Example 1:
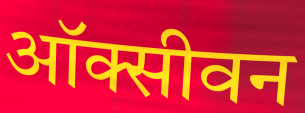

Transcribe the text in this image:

ऑक्सीवन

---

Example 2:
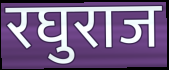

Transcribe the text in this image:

रघुराज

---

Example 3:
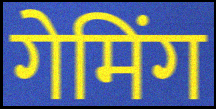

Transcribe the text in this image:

गेमिंग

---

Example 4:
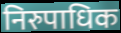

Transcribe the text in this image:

निरुपाधिक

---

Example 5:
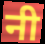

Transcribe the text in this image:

नी